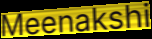
Meenakshi